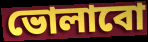
ভোলাবো